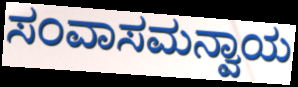
ಸಂವಾಸಮನ್ವಾಯ